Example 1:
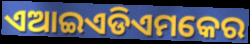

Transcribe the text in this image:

ଏଆଇଏଡିଏମକେର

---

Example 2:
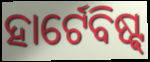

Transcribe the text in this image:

ହାର୍ଟେବିଷ୍ଟ୍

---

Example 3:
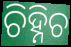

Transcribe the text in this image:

ଚିହ୍ନିଚ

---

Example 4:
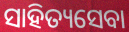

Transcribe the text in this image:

ସାହିତ୍ୟସେବା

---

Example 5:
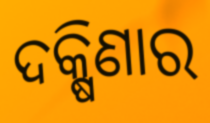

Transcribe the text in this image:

ଦକ୍ଷିଣାର